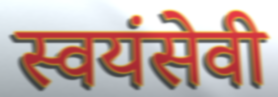
स्वयंसेवी